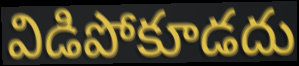
విడిపోకూడదు